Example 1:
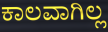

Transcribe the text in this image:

ಕಾಲವಾಗಿಲ್ಲ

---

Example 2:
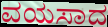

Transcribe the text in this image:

ವಯಸಾದ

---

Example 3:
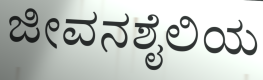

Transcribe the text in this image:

ಜೀವನಶೈಲಿಯ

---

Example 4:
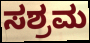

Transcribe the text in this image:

ಸಶ್ರಮ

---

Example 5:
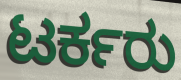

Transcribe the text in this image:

ಟರ್ಕರು